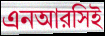
এনআরসিই